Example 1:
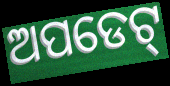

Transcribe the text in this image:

ଅପଡେଟ୍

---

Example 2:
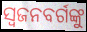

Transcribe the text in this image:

ସ୍ଵଜନବର୍ଗଙ୍କୁ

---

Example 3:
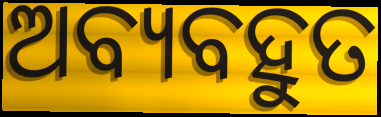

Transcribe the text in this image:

ଅବ୍ୟବହୁତ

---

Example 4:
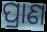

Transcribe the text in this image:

ପ୍ରାଣ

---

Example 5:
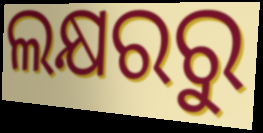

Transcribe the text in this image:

ଲକ୍ଷରରୁ